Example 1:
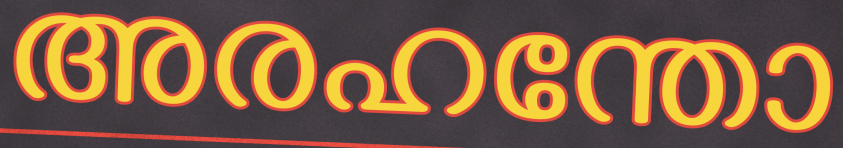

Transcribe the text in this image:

അരഹന്തോ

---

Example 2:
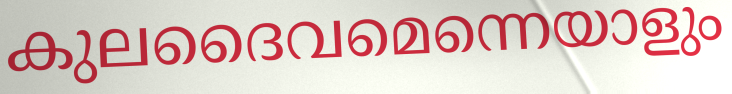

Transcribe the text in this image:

കുലദൈവമെന്നെയാളും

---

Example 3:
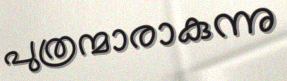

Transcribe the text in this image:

പുത്രന്മാരാകുന്നു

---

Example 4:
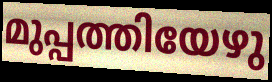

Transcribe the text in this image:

മുപ്പത്തിയേഴു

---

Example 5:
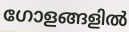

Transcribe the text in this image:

ഗോളങ്ങളിൽ